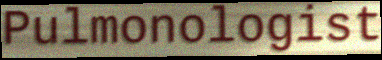
Pulmonologist